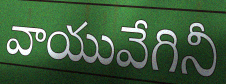
వాయువేగినీ